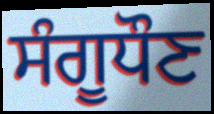
ਸੰਗੂਧੌਣ